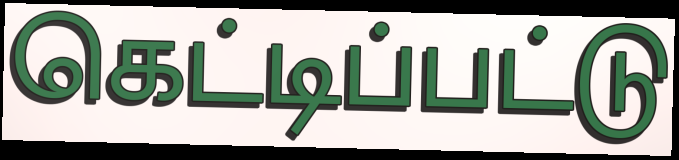
கெட்டிப்பட்டு